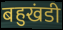
बहुखंडी